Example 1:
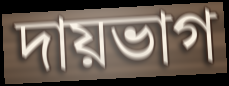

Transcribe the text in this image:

দায়ভাগ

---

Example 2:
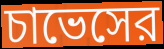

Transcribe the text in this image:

চাভেসের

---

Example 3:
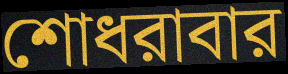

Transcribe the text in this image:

শোধরাবার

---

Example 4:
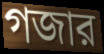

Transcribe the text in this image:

গজার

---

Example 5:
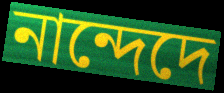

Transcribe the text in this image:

নান্দেদে